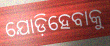
ଯୋଡ଼ିହେବାକୁ